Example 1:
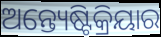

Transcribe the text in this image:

ଅନ୍ତ୍ୟେଷ୍ଟିକ୍ରିୟାର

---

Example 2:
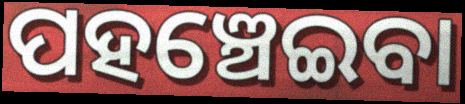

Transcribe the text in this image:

ପହଞ୍ଚେଇବା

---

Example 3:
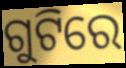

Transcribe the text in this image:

ଗୁଟିରେ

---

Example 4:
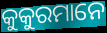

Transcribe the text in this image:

କୁକୁରମାନେ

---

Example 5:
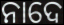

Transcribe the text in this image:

ନାଦେ